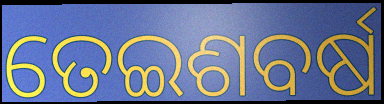
ତେଇଶବର୍ଷ